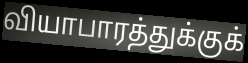
வியாபாரத்துக்குக்